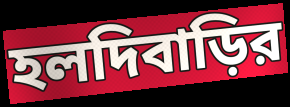
হলদিবাড়ির